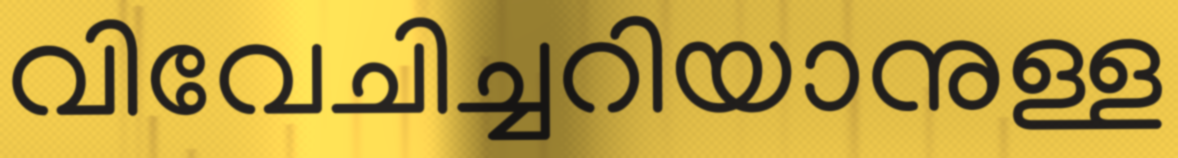
വിവേചിച്ചറിയാനുള്ള